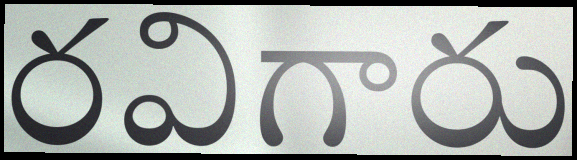
రవిగారు